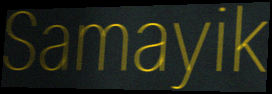
Samayik